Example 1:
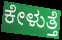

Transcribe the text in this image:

ಕೇಳುತ್ತೆ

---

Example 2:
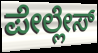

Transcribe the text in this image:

ಪೇಲ್ಲೇಸ್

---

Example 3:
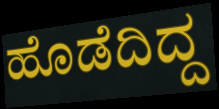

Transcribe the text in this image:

ಹೊಡೆದಿದ್ದ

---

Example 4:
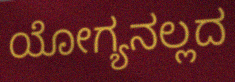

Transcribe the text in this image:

ಯೋಗ್ಯನಲ್ಲದ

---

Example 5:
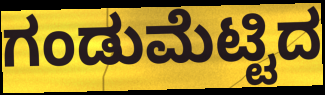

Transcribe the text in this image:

ಗಂಡುಮೆಟ್ಟಿದ